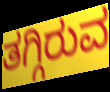
ತಗ್ಗಿರುವ